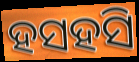
ହସହସି